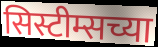
सिस्टीम्सच्या